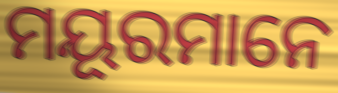
ମୟୂରମାନେ